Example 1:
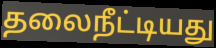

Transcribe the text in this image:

தலைநீட்டியது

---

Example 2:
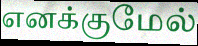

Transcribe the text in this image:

எனக்குமேல்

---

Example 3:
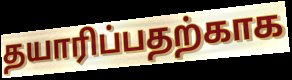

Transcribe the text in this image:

தயாரிப்பதற்காக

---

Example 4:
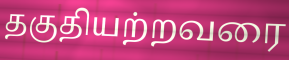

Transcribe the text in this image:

தகுதியற்றவரை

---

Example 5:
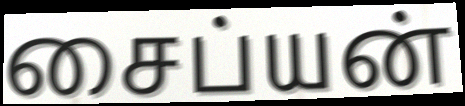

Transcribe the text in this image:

சைப்யன்